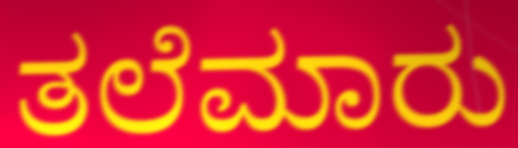
ತಲೆಮಾರು